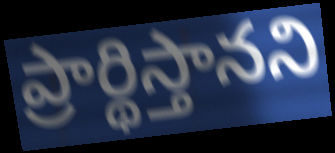
ప్రార్థిస్తానని